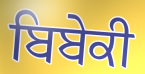
ਬਿਬੇਕੀ